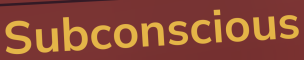
Subconscious